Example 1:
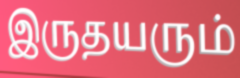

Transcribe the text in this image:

இருதயரும்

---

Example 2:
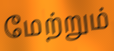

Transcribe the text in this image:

மேற்றும்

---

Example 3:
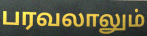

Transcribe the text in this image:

பரவலாலும்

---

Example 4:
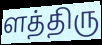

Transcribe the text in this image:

ளத்திரு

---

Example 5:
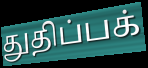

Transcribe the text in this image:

துதிப்பக்